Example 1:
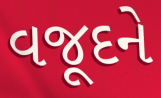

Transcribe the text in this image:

વજૂદને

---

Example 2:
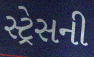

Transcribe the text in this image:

સ્ટ્રેસની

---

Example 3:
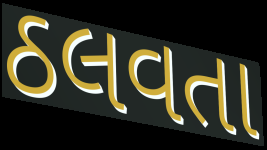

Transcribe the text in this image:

ઠલવતા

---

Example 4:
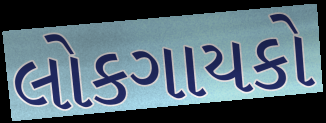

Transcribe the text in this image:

લોકગાયકો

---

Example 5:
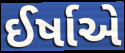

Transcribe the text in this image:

ઈર્ષાએ